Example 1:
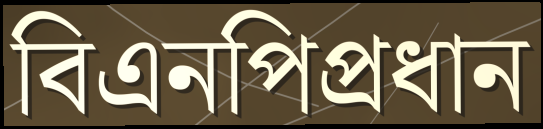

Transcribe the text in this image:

বিএনপিপ্রধান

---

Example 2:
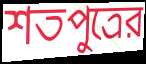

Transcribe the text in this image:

শতপুত্রের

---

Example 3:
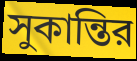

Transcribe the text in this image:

সুকান্তির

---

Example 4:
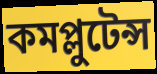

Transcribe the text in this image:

কমপ্লুটেন্স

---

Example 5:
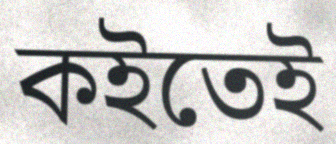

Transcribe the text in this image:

কইতেই